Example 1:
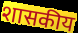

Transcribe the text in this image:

शासकीय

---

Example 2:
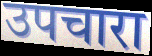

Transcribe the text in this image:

उपचारा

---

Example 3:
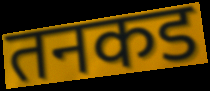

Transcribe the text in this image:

तनकड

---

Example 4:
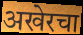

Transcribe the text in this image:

अखेरचा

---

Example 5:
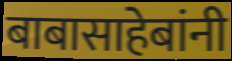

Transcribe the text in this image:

बाबासाहेबांनी